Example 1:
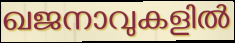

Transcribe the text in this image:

ഖജനാവുകളിൽ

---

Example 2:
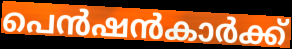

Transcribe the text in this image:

പെൻഷൻകാർക്ക്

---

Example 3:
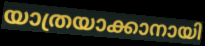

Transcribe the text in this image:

യാത്രയാക്കാനായി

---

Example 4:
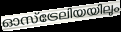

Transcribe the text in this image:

ഓസ്ട്രേലിയയിലും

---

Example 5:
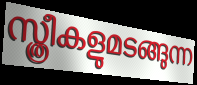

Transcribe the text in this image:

സ്ത്രീകളുമടങ്ങുന്ന